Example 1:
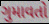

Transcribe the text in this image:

ગુમાવતો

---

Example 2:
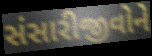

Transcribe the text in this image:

સંસારીજીવોને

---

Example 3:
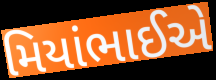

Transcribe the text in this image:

મિયાંભાઈએ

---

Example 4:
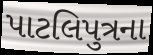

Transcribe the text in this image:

પાટલિપુત્રના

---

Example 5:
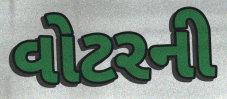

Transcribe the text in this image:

વોટરની